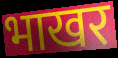
भाखर